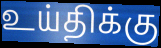
உய்திக்கு